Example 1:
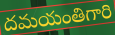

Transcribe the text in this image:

దమయంతిగారి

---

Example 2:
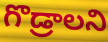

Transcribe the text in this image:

గొడ్రాలని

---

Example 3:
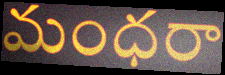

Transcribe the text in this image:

మంధరా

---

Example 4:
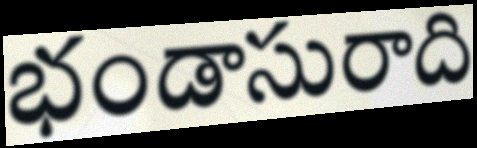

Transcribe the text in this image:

భండాసురాది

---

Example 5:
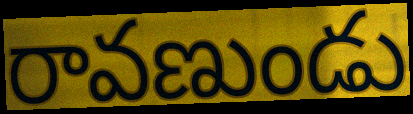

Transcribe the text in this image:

రావణుండు